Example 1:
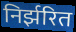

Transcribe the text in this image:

निर्झरित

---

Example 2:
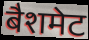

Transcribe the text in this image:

बैशमेट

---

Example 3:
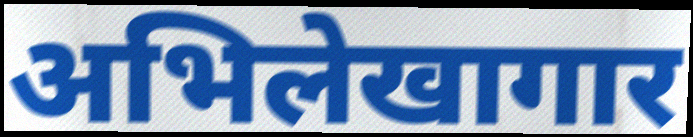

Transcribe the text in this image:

अभिलेखागार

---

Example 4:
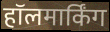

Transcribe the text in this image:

हॉलमार्किंग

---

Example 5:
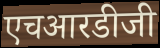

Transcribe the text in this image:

एचआरडीजी